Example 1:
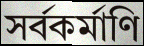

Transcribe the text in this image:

সর্বকর্মাণি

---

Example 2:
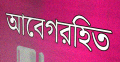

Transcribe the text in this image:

আবেগরহিত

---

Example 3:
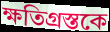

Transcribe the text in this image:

ক্ষতিগ্রস্তকে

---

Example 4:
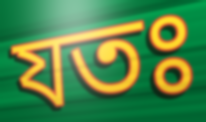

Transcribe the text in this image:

যতঃ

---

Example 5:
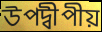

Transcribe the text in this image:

উপদ্বীপীয়